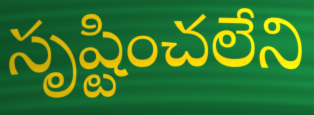
సృష్టించలేని